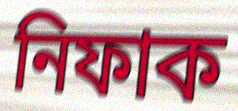
নিফাক